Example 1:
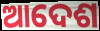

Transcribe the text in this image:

ଆଦେଶ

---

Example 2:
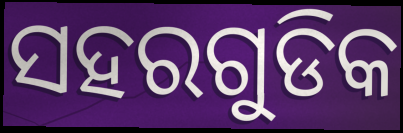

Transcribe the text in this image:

ସହରଗୁଡିକ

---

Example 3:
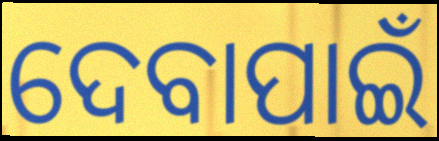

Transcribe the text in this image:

ଦେବାପାଇଁ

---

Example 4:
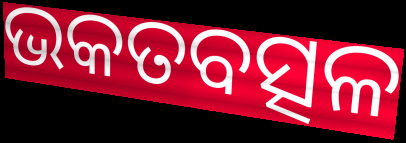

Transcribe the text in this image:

ଭକତବତ୍ସଳ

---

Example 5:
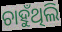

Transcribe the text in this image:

ଚାହୁଁଥିଲି